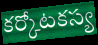
కర్కోటకస్య